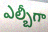
ఎల్బీగా